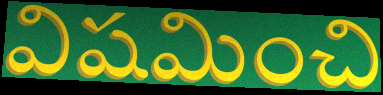
విషమించి